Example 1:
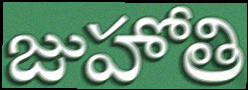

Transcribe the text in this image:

జుహోతి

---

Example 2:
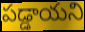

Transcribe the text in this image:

పడ్డాయని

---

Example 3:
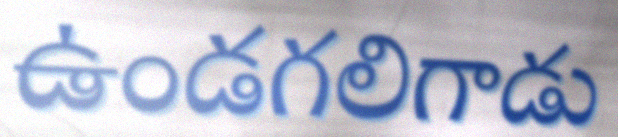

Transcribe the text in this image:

ఉండగలిగాడు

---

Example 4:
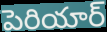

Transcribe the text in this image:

పెరియార్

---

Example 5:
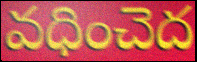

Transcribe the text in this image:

వధించెద